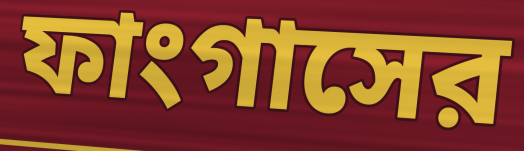
ফাংগাসের